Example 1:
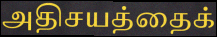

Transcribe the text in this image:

அதிசயத்தைக்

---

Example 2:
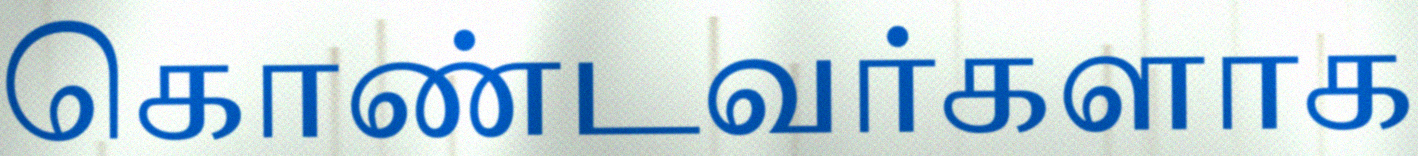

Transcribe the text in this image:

கொண்டவர்களாக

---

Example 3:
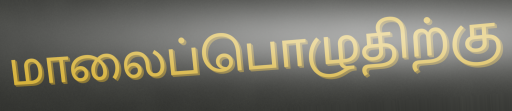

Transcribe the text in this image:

மாலைப்பொழுதிற்கு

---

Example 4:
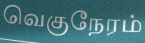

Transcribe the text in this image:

வெகுநேரம்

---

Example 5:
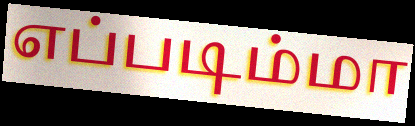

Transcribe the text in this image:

எப்படிம்மா